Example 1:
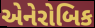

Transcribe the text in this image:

એનેરોબિક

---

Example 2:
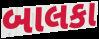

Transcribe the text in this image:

બાલકા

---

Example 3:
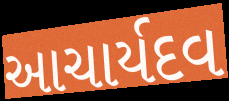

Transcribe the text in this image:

આચાર્યદવ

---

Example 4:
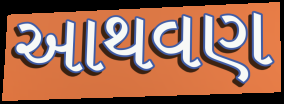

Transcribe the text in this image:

આથવણ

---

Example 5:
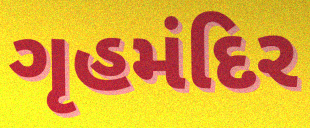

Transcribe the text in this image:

ગૃહમંદિર